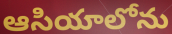
ఆసియాలోను